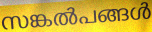
സങ്കൽപങ്ങൾ